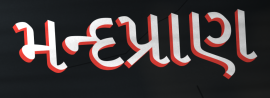
મન્દપ્રાણ